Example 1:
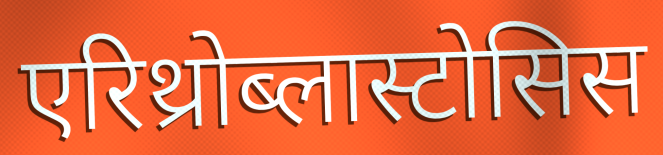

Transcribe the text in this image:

एरिथ्रोब्लास्टोसिस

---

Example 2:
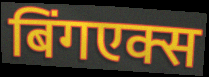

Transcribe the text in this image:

बिंगएक्स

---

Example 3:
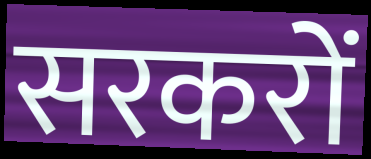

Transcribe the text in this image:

सरकरों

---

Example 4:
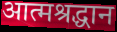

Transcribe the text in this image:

आत्मश्रद्धान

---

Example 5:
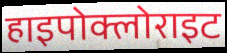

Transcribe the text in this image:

हाइपोक्लोराइट